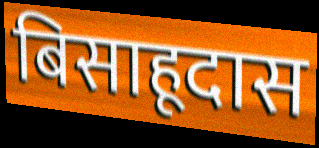
बिसाहूदास